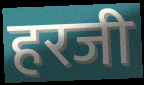
हरजी